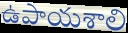
ఉపాయశాలి